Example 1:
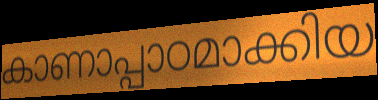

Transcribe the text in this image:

കാണാപ്പാഠമാക്കിയ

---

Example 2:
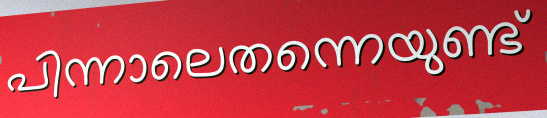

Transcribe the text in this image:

പിന്നാലെതന്നെയുണ്ട്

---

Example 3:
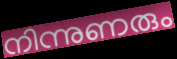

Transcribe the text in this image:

നിന്നുണരും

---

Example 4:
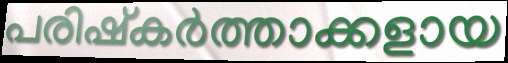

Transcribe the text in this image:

പരിഷ്കർത്താക്കളായ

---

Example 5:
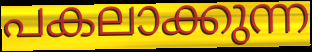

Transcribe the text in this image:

പകലാക്കുന്ന